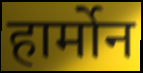
हार्मोन